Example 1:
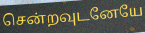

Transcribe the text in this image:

சென்றவுடனேயே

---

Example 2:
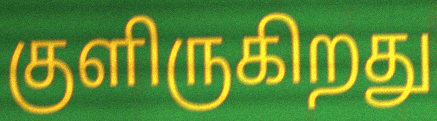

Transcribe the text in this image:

குளிருகிறது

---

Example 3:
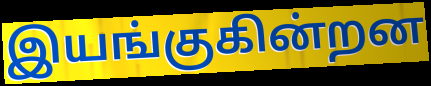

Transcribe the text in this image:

இயங்குகின்றன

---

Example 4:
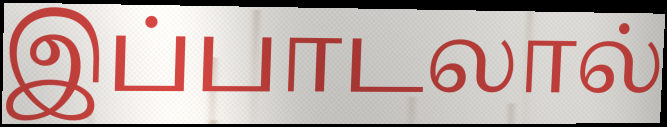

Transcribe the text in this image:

இப்பாடலால்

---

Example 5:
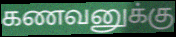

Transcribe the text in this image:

கணவனுக்கு